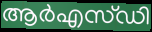
ആർഎസ്ഡി